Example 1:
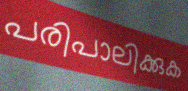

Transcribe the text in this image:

പരിപാലിക്കുക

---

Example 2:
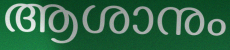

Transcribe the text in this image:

ആശാനും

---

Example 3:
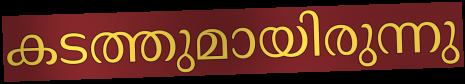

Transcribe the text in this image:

കടത്തുമായിരുന്നു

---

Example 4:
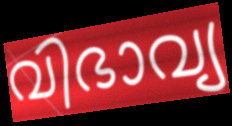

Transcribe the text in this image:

വിഭാവ്യ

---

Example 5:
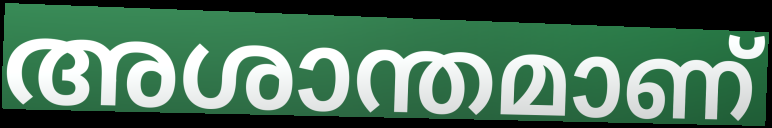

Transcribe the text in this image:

അശാന്തമാണ്